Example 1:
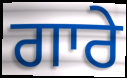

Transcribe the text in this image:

ਗਾਰੇ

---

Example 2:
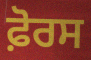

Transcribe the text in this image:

ਫ਼ੋਰਸ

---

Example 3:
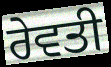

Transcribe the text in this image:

ਰੇਵਤੀ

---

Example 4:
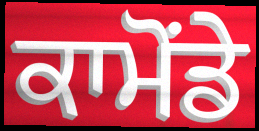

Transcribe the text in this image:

ਕਾਮੋਂਡੇ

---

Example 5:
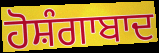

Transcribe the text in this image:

ਹੋਸ਼ੰਗਾਬਾਦ